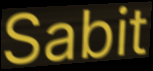
Sabit